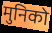
मुनिको